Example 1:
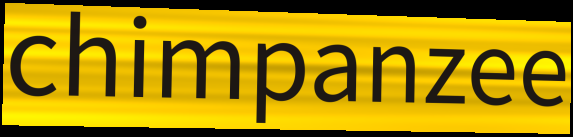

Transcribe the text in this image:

chimpanzee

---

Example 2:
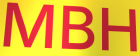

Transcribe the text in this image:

MBH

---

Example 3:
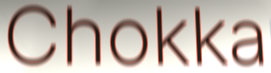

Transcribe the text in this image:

Chokka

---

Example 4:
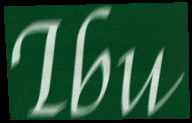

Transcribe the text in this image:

Ibu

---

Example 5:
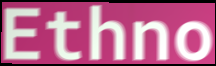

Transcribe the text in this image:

Ethno